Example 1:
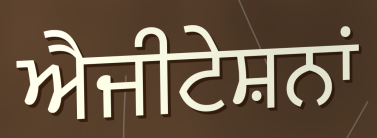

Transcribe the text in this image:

ਐਜੀਟੇਸ਼ਨਾਂ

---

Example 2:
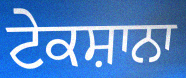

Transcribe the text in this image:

ਟੇਕਸ਼ਾਨਾ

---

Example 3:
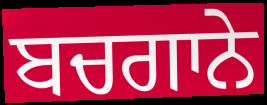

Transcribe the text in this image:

ਬਚਗਾਨੇ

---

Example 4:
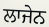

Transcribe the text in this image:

ਲਾਜੇਨ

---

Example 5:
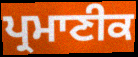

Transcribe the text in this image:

ਪ੍ਰਮਾਣੀਕ